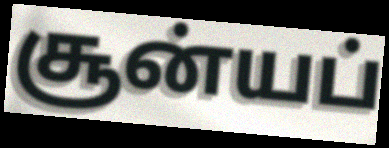
சூன்யப்